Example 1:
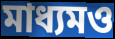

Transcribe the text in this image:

মাধ্যমও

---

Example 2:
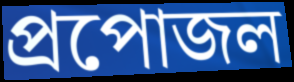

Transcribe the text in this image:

প্রপোজল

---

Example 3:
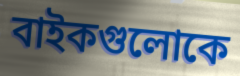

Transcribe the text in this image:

বাইকগুলোকে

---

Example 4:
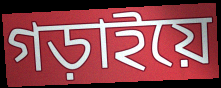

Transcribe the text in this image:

গড়াইয়ে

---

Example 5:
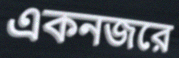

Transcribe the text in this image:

একনজরে